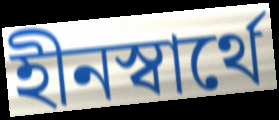
হীনস্বার্থে